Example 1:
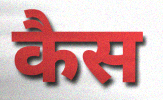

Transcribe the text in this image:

कैस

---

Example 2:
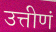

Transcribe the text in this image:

उत्तीणं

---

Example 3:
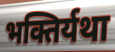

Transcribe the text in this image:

भक्तिर्यथा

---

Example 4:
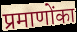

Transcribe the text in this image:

प्रमाणोंका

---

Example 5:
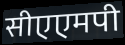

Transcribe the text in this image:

सीएएमपी